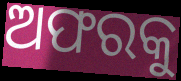
ଅଫରକୁ